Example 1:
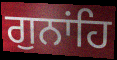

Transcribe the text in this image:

ਗੁਨਾਂਹਿ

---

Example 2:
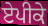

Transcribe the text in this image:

ਏਪੀਕੇ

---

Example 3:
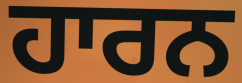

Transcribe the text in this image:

ਹਾਰਨ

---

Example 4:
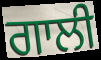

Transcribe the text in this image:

ਗਾਲੀ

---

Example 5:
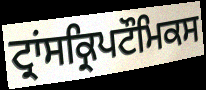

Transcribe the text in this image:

ਟ੍ਰਾਂਸਕ੍ਰਿਪਟੌਮਿਕਸ